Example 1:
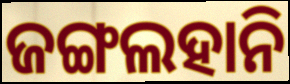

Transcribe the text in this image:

ଜଙ୍ଗଲହାନି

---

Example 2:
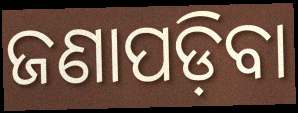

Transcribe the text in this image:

ଜଣାପଡ଼ିବା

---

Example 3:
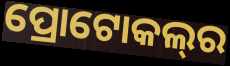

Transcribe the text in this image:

ପ୍ରୋଟୋକଲ୍‌ର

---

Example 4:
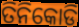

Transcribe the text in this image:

ତିନିକୋଡି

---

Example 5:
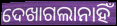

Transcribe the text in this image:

ଦେଖାଗଲାନାହିଁ